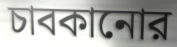
চাবকানোর